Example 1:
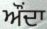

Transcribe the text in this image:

ਔਂਦਾ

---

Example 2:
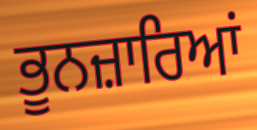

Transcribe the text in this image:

ਭੂਨਜ਼ਾਰਿਆਂ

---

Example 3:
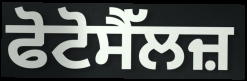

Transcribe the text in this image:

ਫੋਟੋਸੈੱਲਜ਼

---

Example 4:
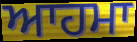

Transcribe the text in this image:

ਆਹਮਾ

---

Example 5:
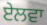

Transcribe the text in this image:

ਏਲਵਾ